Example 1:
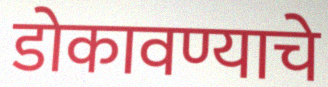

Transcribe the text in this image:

डोकावण्याचे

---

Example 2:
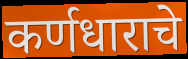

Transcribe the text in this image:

कर्णधाराचे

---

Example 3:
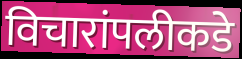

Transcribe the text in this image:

विचारांपलीकडे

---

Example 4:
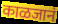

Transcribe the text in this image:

काळजानं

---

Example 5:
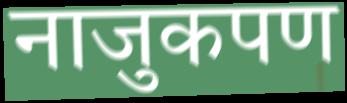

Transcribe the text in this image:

नाजुकपण